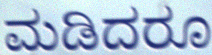
ಮಡಿದರೂ